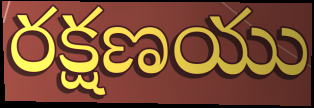
రక్షణయు